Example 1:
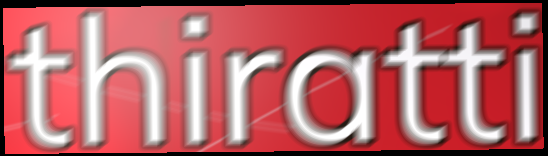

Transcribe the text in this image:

thiratti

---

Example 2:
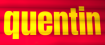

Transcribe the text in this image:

quentin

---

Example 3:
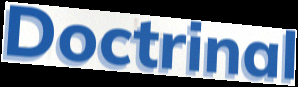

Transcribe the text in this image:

Doctrinal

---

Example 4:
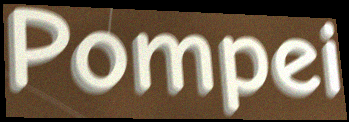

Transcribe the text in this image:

Pompei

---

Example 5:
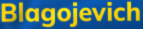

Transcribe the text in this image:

Blagojevich